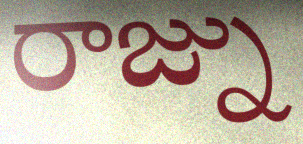
రాజ్ను